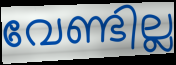
വേണ്ടില്ല